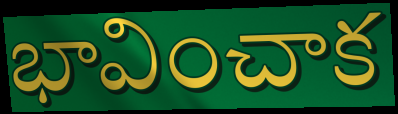
భావించాక